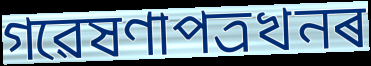
গৱেষণাপত্ৰখনৰ